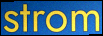
strom